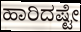
ಹಾರಿದಷ್ಟೇ